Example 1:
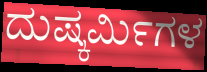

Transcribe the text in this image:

ದುಷ್ಕರ್ಮಿಗಳ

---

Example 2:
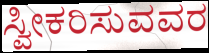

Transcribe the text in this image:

ಸ್ವೀಕರಿಸುವವರ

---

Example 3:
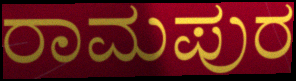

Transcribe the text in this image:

ರಾಮಪುರ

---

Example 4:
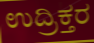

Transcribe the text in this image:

ಉದ್ರಿಕ್ತರ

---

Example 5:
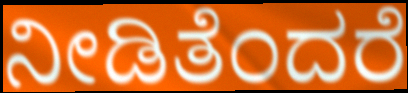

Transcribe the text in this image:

ನೀಡಿತೆಂದರೆ